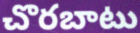
చొరబాటు